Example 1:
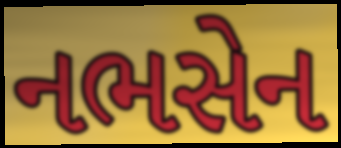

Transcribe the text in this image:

નભસેન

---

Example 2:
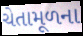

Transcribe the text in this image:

ચેતામૂળના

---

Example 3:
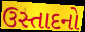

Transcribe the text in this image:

ઉસ્તાદનો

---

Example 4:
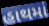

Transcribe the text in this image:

હાથમાં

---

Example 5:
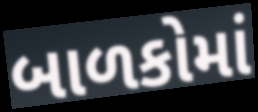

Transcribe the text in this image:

બાળકોમાં